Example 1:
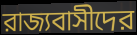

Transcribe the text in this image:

রাজ্যবাসীদের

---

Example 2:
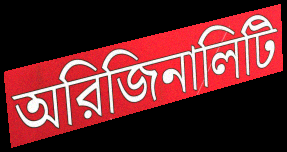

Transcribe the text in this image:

অরিজিনালিটি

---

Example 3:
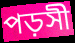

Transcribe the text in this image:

পড়সী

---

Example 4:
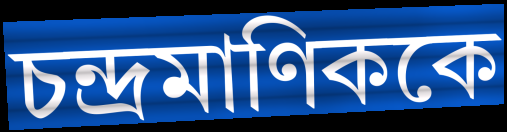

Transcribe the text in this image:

চন্দ্রমাণিককে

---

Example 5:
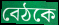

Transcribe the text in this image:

বেঠকে